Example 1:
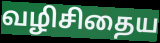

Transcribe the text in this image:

வழிசிதைய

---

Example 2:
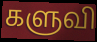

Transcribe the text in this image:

களுவி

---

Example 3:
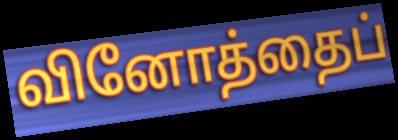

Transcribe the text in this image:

வினோத்தைப்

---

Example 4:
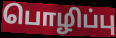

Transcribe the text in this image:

பொழிப்பு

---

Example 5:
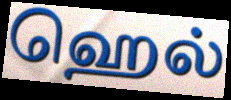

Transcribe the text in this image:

ஹெல்